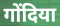
गोंदिया